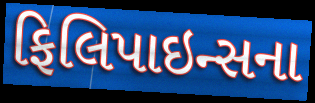
ફિલિપાઇન્સના